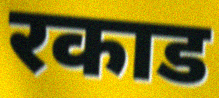
रकाड